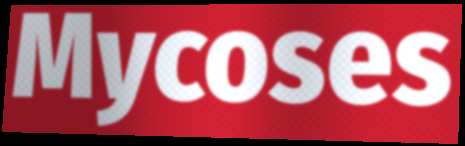
Mycoses